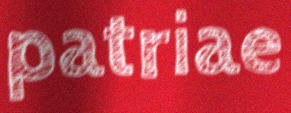
patriae